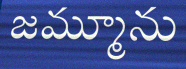
జమ్మూను